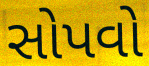
સોપવો